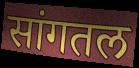
सांगतल